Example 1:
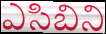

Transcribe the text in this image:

ఎసిబిని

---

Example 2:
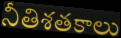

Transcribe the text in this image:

నీతిశతకాలు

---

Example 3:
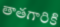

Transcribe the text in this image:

తాతగారికి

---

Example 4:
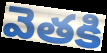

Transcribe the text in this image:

వెతకి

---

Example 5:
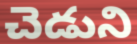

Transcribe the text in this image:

చెడుని